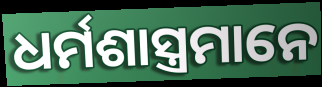
ଧର୍ମଶାସ୍ତ୍ରମାନେ